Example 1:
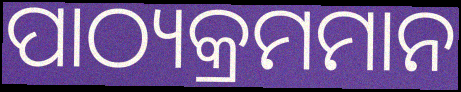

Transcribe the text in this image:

ପାଠ୍ୟକ୍ରମମାନ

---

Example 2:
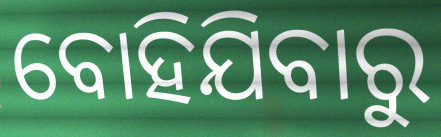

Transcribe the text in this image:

ବୋହିଯିବାରୁ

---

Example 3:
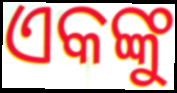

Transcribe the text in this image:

ଏକଙ୍କୁ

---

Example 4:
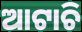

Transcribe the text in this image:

ଆଟାଚି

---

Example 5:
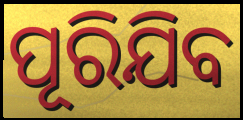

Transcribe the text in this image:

ପୂରିଯିବ